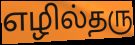
எழில்தரு